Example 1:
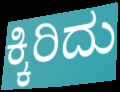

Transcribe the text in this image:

ಕ್ಕಿರಿದು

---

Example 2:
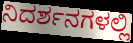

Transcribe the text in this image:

ನಿದರ್ಶನಗಳಲ್ಲಿ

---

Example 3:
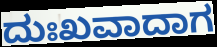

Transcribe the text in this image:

ದುಃಖವಾದಾಗ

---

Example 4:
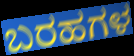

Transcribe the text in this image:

ಬರಹಗಳ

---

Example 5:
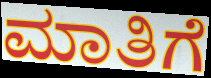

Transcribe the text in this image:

ಮಾತಿಗೆ